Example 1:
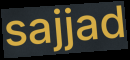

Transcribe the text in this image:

sajjad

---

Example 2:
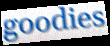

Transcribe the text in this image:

goodies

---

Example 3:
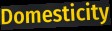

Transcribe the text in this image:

Domesticity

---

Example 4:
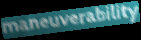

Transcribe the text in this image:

maneuverability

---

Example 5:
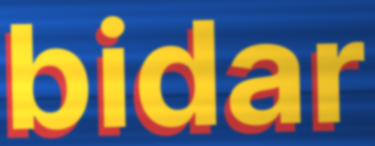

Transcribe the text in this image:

bidar